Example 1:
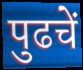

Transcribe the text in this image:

पुढचें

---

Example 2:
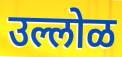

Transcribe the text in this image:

उल्लोळ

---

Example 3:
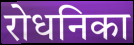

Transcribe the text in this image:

रोधनिका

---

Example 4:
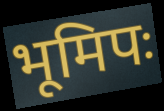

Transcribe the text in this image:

भूमिपः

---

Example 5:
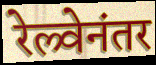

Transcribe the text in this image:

रेल्वेनंतर